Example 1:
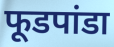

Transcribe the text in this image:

फूडपांडा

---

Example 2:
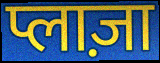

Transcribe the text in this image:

प्लाज़ा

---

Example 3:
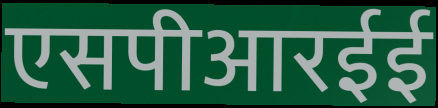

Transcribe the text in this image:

एसपीआरईई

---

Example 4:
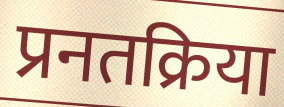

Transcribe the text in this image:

प्रनतक्रिया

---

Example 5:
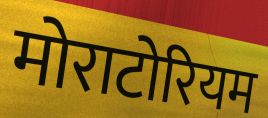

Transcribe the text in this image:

मोराटोरियम